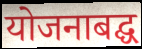
योजनाबद्घ